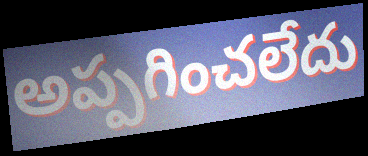
అప్పగించలేదు